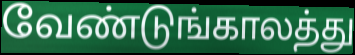
வேண்டுங்காலத்து